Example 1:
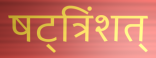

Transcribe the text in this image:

षट्त्रिंशत्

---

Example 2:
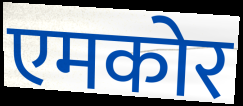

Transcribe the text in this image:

एमकोर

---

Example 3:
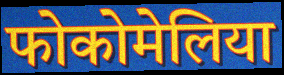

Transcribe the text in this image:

फोकोमेलिया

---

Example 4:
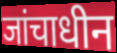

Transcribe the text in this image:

जांचाधीन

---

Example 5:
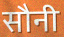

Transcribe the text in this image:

सौनी